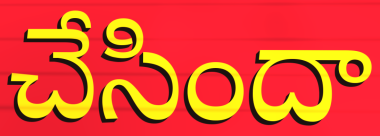
చేసిందా